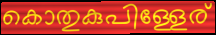
കൊതുകുപിള്ളേര്